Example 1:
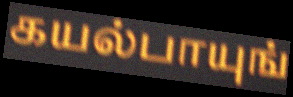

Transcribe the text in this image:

கயல்பாயுங்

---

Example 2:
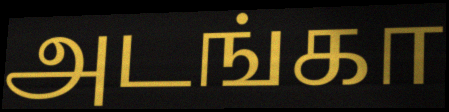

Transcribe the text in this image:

அடங்கா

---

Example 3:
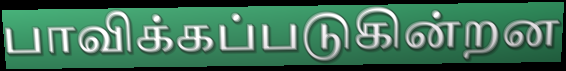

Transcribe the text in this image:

பாவிக்கப்படுகின்றன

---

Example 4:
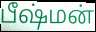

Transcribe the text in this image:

பீஷ்மன்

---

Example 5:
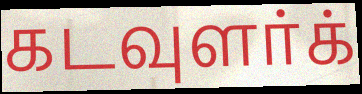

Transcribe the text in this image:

கடவுளர்க்